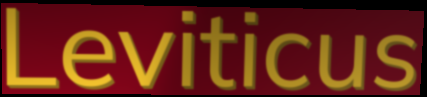
Leviticus